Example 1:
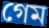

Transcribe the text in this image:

গেম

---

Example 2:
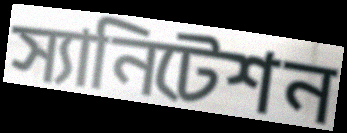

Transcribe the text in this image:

স্যানিটেশন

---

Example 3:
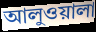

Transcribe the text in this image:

আলুওয়ালা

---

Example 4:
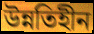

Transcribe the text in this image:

উন্নতিহীন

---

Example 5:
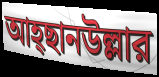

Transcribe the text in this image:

আহ্ছানউল্লার